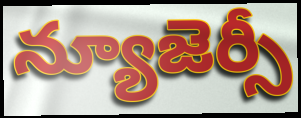
న్యూజెర్సీ